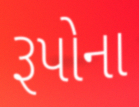
રૂપોના